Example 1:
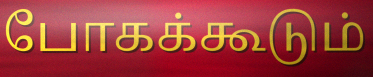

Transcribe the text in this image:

போகக்கூடும்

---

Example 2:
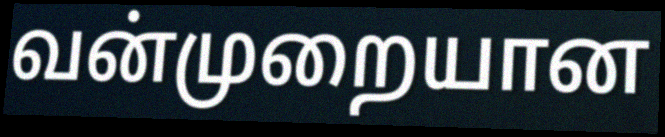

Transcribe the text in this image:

வன்முறையான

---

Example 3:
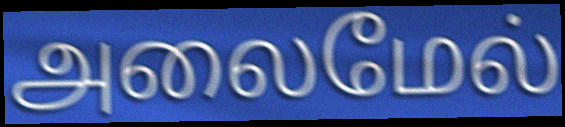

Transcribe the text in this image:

அலைமேல்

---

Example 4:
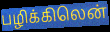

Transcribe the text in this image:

பழிக்கிலென்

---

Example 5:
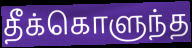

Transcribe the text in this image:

தீக்கொளுந்த